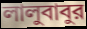
লালুবাবুর